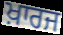
ਖ਼ਾਰਜ